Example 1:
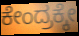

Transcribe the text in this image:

ಕೇಂದ್ರಕ್ಕೇ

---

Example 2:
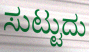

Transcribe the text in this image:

ಸುಟ್ಟುದು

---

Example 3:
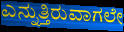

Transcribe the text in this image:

ಎನ್ನುತ್ತಿರುವಾಗಲೇ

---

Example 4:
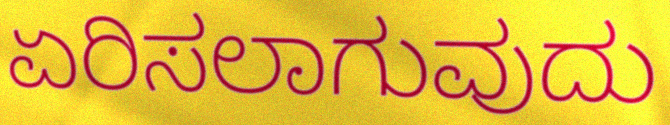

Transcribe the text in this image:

ಏರಿಸಲಾಗುವುದು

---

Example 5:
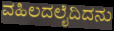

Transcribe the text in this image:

ವಹಿಲದಲೈದಿದನು